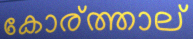
കോര്ത്താല്